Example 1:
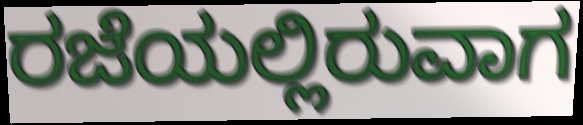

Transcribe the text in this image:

ರಜೆಯಲ್ಲಿರುವಾಗ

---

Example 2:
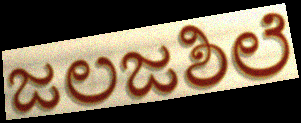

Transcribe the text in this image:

ಜಲಜಶಿಲೆ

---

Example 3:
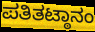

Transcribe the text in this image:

ಪತಿತಟ್ಠಾನಂ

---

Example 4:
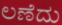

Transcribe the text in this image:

ಲಣೆದು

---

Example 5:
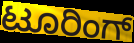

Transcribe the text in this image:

ಟೂರಿಂಗ್